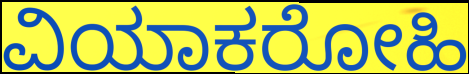
ವಿಯಾಕರೋಹಿ